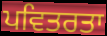
ਪਵਿਤਰਤਾ